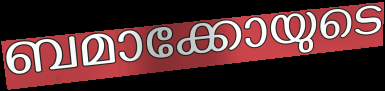
ബമാക്കോയുടെ